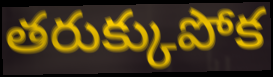
తరుక్కుపోక